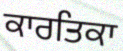
ਕਾਰਤਿਕਾ